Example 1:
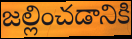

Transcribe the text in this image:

జల్లించడానికి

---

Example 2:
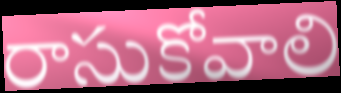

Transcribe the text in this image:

రాసుకోవాలి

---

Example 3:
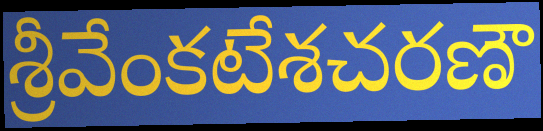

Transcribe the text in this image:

శ్రీవేంకటేశచరణౌ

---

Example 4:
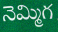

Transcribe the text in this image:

నెమ్మిగ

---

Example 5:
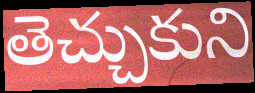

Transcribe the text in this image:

తెచ్చుకుని